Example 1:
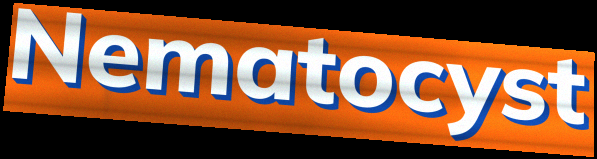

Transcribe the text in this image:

Nematocyst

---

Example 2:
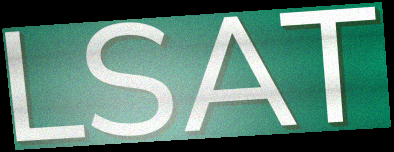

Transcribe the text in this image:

LSAT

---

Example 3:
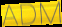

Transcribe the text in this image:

ADM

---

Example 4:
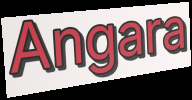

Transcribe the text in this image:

Angara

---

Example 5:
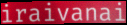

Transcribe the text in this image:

iraivanai